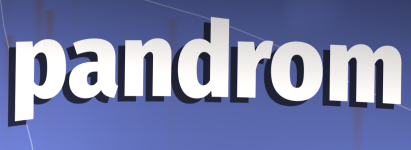
pandrom